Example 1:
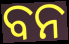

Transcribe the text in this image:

ବନ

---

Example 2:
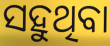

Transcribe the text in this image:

ସହୁଥିବା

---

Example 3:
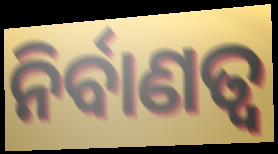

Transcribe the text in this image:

ନିର୍ବାଣତ୍ୱ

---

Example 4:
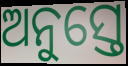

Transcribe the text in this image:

ଅନୁସ୍ତେ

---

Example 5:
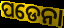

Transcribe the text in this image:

ପଡେନା